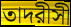
তাদরীসী